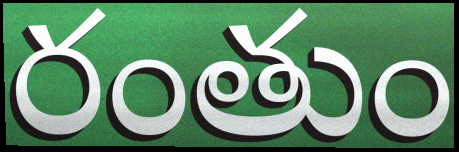
రంతుం